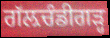
ਗੱਲ਼ਚੰਡੀਗੜ੍ਹ